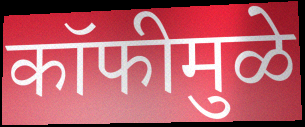
कॉफीमुळे